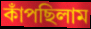
কাঁপছিলাম